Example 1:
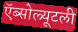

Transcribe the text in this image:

ऍब्सोल्यूटली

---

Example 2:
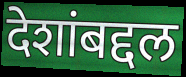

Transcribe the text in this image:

देशांबद्दल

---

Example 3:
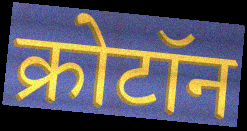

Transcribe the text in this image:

क्रोटॉन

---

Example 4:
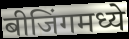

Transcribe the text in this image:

बीजिंगमध्ये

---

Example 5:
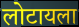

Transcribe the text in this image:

लोटायला